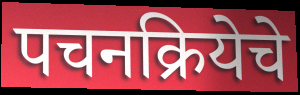
पचनक्रियेचे